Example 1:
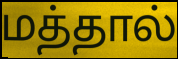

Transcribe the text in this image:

மத்தால்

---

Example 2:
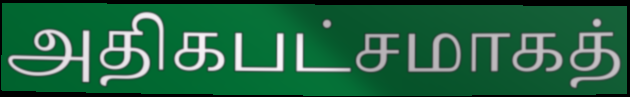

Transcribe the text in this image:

அதிகபட்சமாகத்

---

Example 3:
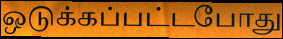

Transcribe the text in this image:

ஒடுக்கப்பட்டபோது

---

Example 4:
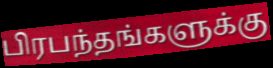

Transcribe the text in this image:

பிரபந்தங்களுக்கு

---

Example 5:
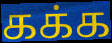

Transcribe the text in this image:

கக்க